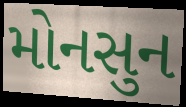
મોનસુન